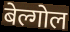
बेल्गोल